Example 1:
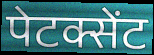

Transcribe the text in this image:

पेटक्सेंट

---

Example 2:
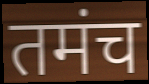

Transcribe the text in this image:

तमंच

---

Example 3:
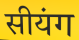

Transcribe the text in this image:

सीयंग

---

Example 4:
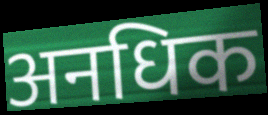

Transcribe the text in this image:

अनधिक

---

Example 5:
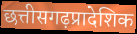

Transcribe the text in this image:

छत्तीसगढ़प्रादेशिक